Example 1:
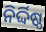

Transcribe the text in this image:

ନିର୍ଦ୍ଦିଷ୍ଠ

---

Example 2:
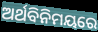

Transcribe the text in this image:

ଅର୍ଥବିନିମୟରେ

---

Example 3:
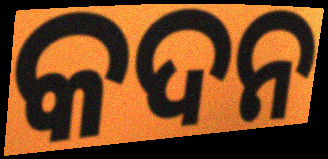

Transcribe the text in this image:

କଦନ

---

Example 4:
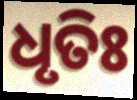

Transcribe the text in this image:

ଧୃତିଃ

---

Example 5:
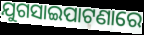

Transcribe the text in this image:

ଯୁଗସାଇପାଟଣାରେ